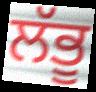
ਲੱਭੂ